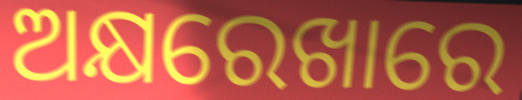
ଅକ୍ଷରେଖାରେ